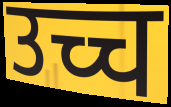
उच्च